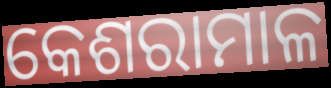
କେଶରାମାଳ